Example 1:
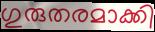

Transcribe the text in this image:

ഗുരുതരമാക്കി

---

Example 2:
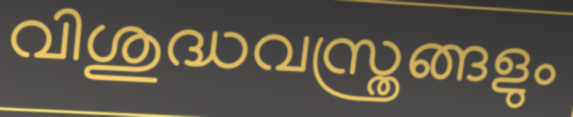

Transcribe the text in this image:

വിശുദ്ധവസ്ത്രങ്ങളും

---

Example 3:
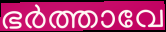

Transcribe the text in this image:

ഭർത്താവേ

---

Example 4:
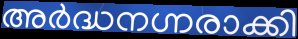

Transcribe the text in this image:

അർദ്ധനഗ്നരാക്കി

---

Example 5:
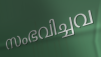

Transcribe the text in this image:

സംഭവിച്ചവ